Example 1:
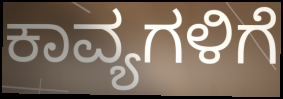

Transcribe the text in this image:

ಕಾವ್ಯಗಳಿಗೆ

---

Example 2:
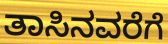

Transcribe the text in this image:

ತಾಸಿನವರೆಗೆ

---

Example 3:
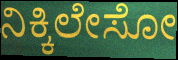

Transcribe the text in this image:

ನಿಕ್ಕಿಲೇಸೋ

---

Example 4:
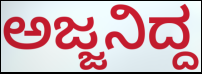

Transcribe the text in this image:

ಅಜ್ಜನಿದ್ದ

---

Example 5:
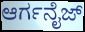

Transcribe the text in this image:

ಆರ್ಗನೈಜ್